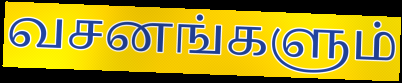
வசனங்களும்